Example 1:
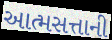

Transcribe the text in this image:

આત્મસત્તાની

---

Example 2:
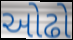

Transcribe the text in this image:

ઓઢો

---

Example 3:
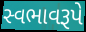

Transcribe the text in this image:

સ્વભાવરૂપે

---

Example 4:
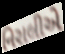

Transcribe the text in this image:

નિરાલીએ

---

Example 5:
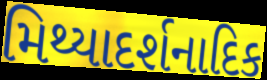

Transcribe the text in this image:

મિથ્યાદર્શનાદિક